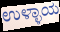
ಉಳ್ಳಾಯ